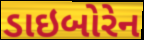
ડાઇબોરેન